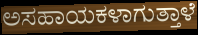
ಅಸಹಾಯಕಳಾಗುತ್ತಾಳೆ